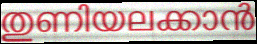
തുണിയലക്കാൻ